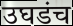
उघडंच